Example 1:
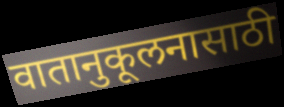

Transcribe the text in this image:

वातानुकूलनासाठी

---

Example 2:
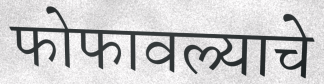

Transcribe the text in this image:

फोफावल्याचे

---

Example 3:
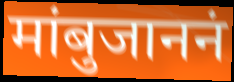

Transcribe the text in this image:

मांबुजाननं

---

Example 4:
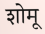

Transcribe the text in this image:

शोमू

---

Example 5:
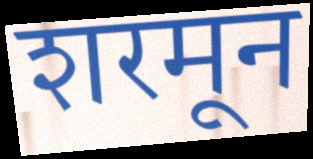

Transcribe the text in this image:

शरमून